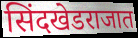
सिंदखेडराजात